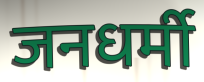
जनधर्मी